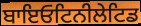
ਬਾਇਓਟਿਨੀਲੇਟਿਡ